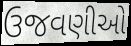
ઉજવણીઓ